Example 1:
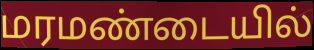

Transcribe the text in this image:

மரமண்டையில்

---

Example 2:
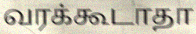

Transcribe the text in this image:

வரக்கூடாதா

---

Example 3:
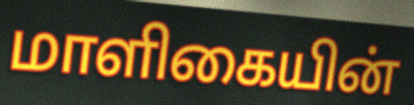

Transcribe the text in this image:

மாளிகையின்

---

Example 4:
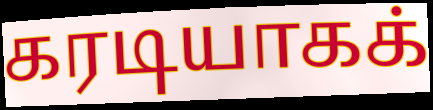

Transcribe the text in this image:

கரடியாகக்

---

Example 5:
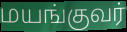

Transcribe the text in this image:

மயங்குவர்